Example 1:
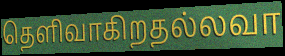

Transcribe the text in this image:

தெளிவாகிறதல்லவா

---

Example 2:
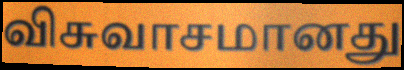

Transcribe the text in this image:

விசுவாசமானது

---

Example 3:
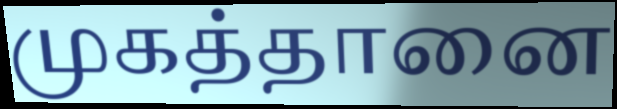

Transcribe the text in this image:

முகத்தானை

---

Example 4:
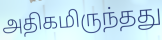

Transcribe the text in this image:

அதிகமிருந்தது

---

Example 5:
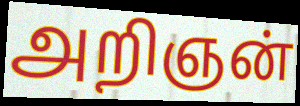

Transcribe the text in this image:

அறிஞன்